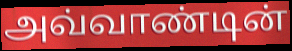
அவ்வாண்டின்